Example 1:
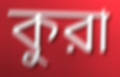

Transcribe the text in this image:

কুরা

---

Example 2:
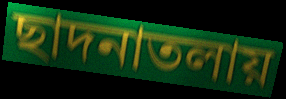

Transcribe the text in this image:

ছাদনাতলায়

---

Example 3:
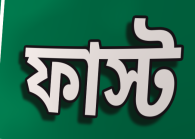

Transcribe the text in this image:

ফাস্ট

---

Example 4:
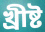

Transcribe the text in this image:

খ্রীষ্ট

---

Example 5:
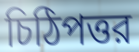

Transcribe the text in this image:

চিঠিপত্তর